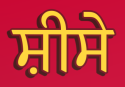
ਸ਼ੀਸੇ